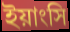
ইয়াংসি